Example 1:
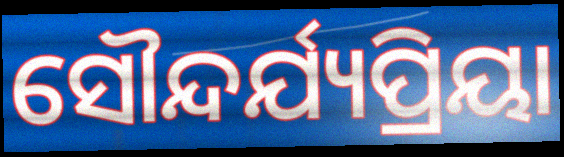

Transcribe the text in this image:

ସୌନ୍ଦର୍ଯ୍ୟପ୍ରିୟା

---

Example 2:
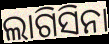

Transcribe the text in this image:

ଲାଗିସିନା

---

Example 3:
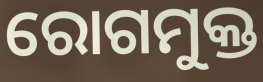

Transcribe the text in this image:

ରୋଗମୁକ୍ତ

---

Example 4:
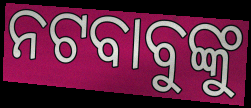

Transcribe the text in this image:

ନଟବାବୁଙ୍କୁ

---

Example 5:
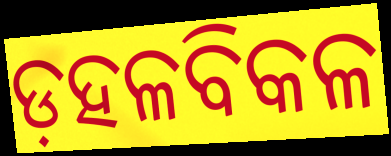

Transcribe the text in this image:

ଡ଼ହଳବିକଳ